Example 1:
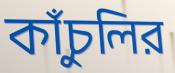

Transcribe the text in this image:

কাঁচুলির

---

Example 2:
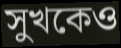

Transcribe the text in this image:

সুখকেও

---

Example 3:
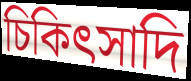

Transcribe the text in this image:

চিকিৎসাদি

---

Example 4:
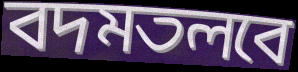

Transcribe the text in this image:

বদমতলবে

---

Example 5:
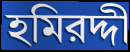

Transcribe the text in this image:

হমিরদ্দী